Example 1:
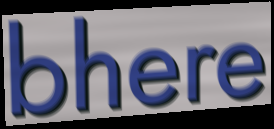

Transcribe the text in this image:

bhere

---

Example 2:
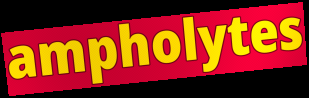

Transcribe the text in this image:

ampholytes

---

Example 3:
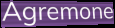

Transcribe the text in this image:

Agremone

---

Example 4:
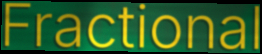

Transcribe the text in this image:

Fractional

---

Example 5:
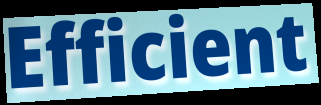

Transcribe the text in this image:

Efficient